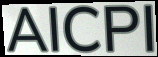
AICPI